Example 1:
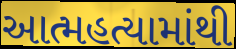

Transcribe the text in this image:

આત્મહત્યામાંથી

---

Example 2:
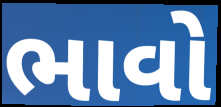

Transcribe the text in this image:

ભાવો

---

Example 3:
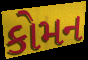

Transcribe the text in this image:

કોમન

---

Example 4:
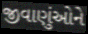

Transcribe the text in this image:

જીવાણુંઓને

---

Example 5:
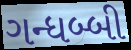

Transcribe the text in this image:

ગન્ધબ્બી